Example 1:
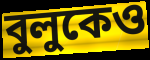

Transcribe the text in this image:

বুলুকেও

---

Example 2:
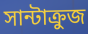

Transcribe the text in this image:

সান্টাক্রুজ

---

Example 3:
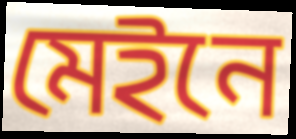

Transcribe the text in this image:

মেইনে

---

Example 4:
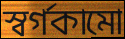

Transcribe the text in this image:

স্বর্গকামো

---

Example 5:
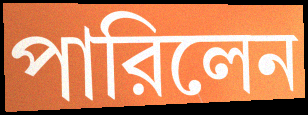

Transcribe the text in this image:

পারিলেন